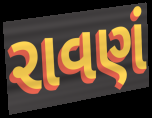
રાવણં